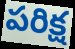
పరిక్ష